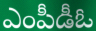
ఎంపీడీఓ